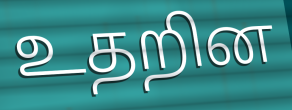
உதறின